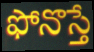
ఫోనొస్తే